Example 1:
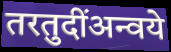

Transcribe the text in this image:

तरतुदींअन्वये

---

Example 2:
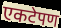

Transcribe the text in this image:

एकटेपण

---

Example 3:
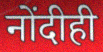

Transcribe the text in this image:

नोंदीही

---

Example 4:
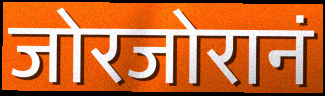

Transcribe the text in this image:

जोरजोरानं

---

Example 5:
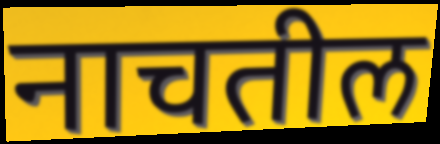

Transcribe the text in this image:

नाचतील